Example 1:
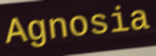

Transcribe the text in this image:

Agnosia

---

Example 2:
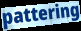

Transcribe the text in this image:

pattering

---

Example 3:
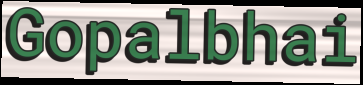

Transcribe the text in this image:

Gopalbhai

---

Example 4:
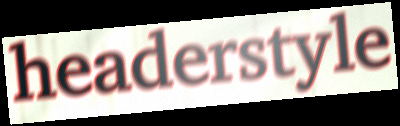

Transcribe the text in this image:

headerstyle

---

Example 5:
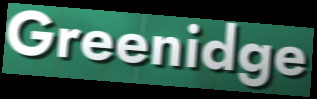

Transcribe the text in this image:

Greenidge